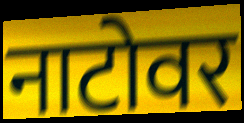
नाटोवर